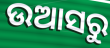
ଉଆସରୁ